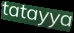
tatayya